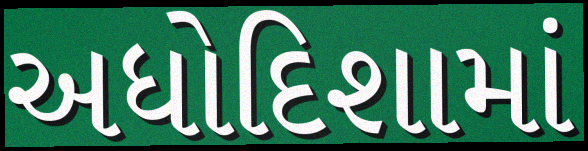
અધોદિશામાં